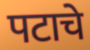
पटाचे